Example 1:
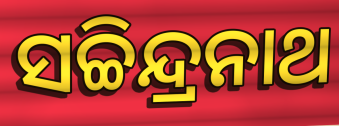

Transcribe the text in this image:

ସଚ୍ଚିନ୍ଦ୍ରନାଥ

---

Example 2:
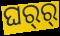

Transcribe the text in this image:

ଘର୍‍ର୍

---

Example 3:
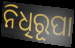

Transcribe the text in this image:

ନିଧିରୂପା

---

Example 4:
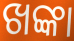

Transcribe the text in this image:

ଖଙ୍କା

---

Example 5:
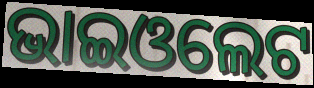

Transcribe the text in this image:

ଭାଇଓଲେଟ